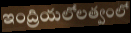
ఇంద్రియలోలత్వంలో